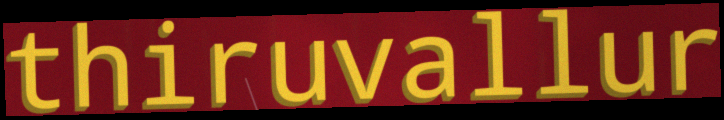
thiruvallur